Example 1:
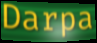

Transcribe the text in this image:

Darpa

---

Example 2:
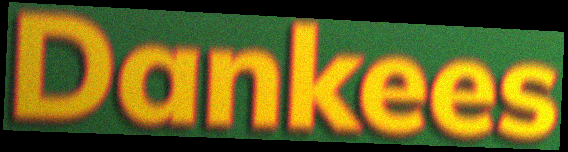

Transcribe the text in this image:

Dankees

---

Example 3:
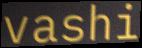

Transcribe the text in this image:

vashi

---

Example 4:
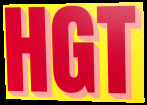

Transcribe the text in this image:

HGT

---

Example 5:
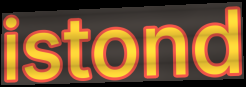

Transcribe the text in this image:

istond